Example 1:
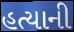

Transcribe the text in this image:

હત્યાની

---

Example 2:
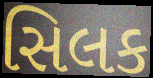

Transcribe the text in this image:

સિલક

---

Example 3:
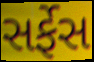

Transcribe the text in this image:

સર્ફેસ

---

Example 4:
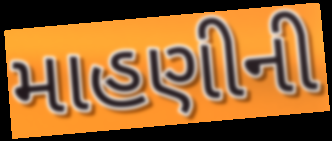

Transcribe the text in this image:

માહણીની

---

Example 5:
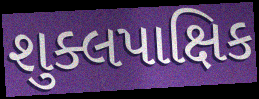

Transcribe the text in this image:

શુક્લપાક્ષિક